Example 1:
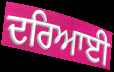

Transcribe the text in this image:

ਦਰਿਆਈ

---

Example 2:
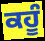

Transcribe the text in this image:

ਕਹੂੰ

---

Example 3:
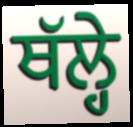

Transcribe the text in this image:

ਥੱਲ੍ਹੇ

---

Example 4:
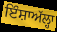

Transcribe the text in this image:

ਇੰਸ਼ਾਅੱਲ੍ਹਾ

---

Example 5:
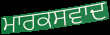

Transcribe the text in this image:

ਮਾਰਕਸਵਾਦ